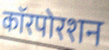
कॉरपोरशन